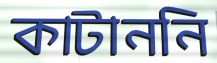
কাটাননি